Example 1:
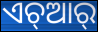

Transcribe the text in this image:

ଏଚ୍ଆର୍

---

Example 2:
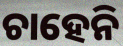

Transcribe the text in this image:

ଚାହେନି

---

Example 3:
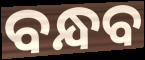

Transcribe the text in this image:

ବନ୍ଧବ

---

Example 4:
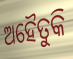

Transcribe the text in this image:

ଅହୈତୁକି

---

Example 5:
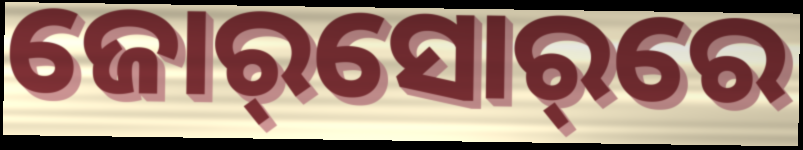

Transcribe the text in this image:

ଜୋର୍‌ସୋର୍‌ରେ